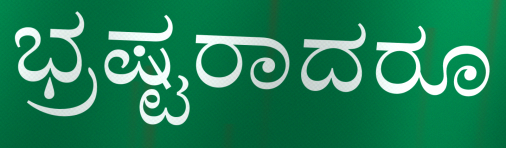
ಭ್ರಷ್ಟರಾದರೂ